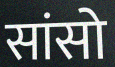
सांसो